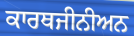
ਕਾਰਥਜੀਨੀਅਨ